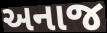
અનાજ